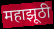
महाझूठी